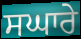
ਸਘਾਰੇ